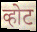
व्होट